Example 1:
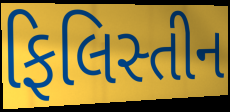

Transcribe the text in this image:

ફિલિસ્તીન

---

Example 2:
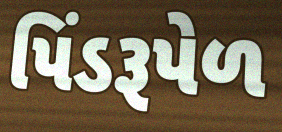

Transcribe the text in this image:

પિંડરૂપેળ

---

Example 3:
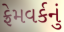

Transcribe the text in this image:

ફ્રેમવર્કનું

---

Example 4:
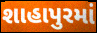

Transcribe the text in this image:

શાહાપુરમાં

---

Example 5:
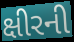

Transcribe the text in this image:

ક્ષીરની